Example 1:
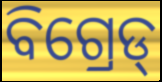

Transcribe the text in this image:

ବିଗ୍ରେଡ୍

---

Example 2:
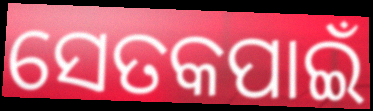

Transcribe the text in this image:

ସେତକପାଇଁ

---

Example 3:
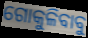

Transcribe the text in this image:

ଗୋକୁଳିବାବୁ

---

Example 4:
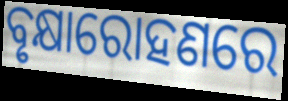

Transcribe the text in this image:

ବୃକ୍ଷାରୋହଣରେ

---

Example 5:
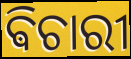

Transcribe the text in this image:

ଵିଚାରୀ